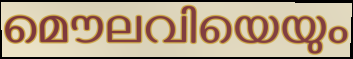
മൌലവിയെയും